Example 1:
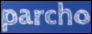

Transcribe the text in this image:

parcho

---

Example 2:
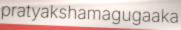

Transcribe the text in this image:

pratyakshamagugaaka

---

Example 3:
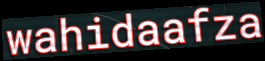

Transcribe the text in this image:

wahidaafza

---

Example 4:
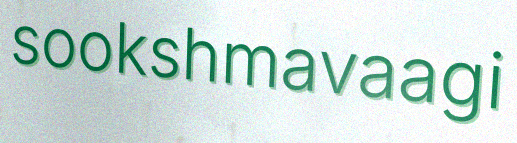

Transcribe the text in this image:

sookshmavaagi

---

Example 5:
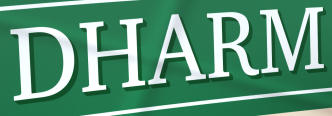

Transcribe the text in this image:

DHARM